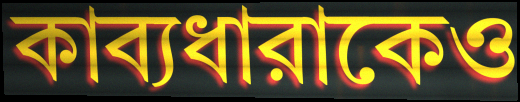
কাব্যধারাকেও